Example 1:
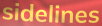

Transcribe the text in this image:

sidelines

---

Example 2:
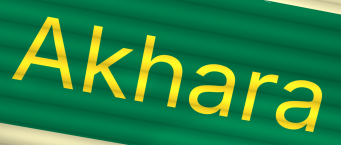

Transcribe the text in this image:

Akhara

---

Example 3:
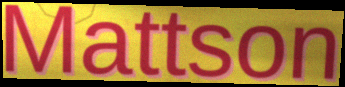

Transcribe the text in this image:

Mattson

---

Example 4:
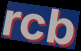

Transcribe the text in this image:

rcb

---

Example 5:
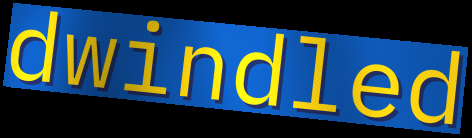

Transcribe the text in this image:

dwindled